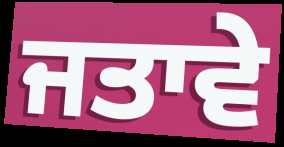
ਜਤਾਵੇ